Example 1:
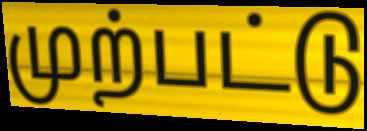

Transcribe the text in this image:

முற்பட்டு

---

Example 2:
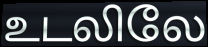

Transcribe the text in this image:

உடலிலே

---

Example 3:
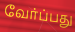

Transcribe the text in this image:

வேர்ப்பது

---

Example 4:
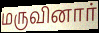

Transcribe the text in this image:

மருவினார்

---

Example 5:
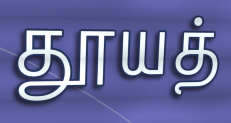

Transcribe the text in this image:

தூயத்